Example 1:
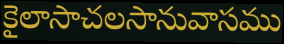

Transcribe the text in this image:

కైలాసాచలసానువాసము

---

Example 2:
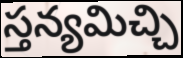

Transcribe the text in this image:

స్తన్యమిచ్చి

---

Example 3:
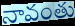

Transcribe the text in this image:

నావంతు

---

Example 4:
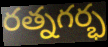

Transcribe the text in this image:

రత్నగర్భ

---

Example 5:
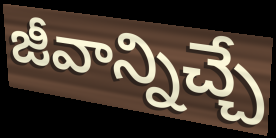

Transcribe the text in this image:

జీవాన్నిచ్చే